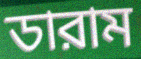
ডারাম